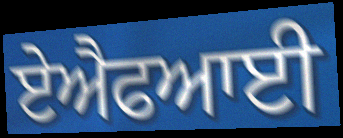
ਏਐਫਆਈ